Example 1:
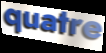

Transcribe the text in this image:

quatre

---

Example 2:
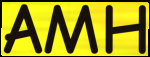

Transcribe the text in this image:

AMH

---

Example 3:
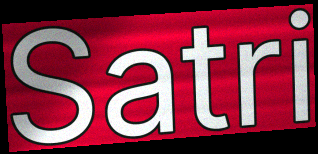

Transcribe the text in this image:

Satri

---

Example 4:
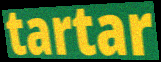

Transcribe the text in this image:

tartar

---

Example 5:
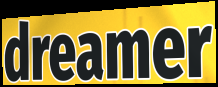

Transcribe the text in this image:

dreamer